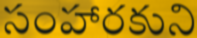
సంహారకుని